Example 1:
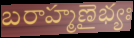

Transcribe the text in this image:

బరాహ్మణైభ్యః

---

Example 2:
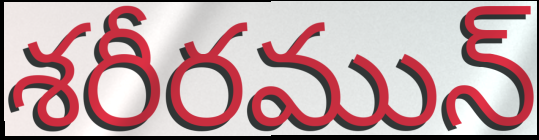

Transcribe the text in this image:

శరీరమున్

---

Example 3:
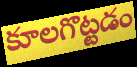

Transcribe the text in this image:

కూలగొట్టడం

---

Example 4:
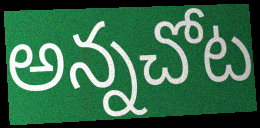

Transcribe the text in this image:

అన్నచోట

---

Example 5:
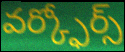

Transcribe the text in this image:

వర్క్ఫోర్స్